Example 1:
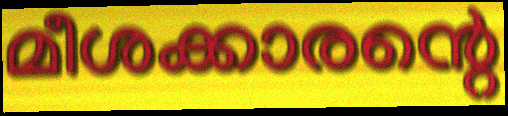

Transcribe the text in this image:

മീശക്കാരന്റെ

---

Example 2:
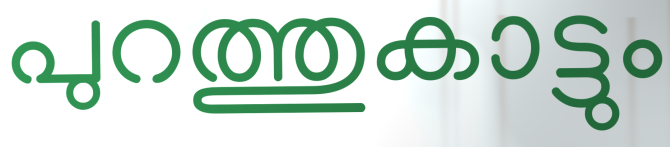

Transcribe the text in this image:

പുറത്തുകാട്ടും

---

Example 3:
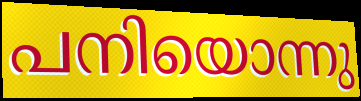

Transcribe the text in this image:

പനിയൊന്നു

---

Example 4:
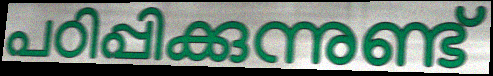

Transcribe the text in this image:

പഠിപ്പിക്കുന്നുണ്ട്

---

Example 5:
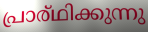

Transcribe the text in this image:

പ്രാര്ഥിക്കുന്നു